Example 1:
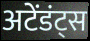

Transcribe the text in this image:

अटेंडंट्स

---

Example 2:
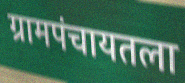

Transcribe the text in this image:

ग्रामपंचायतला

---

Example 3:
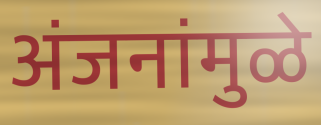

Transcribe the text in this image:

अंजनांमुळे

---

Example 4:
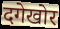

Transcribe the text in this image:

दगेखोर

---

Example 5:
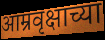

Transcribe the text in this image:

आम्रवृक्षाच्या